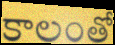
కాలంతో